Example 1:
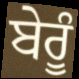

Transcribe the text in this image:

ਬੇਰੂੰ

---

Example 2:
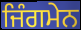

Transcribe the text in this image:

ਜਿੰਗਮੇਨ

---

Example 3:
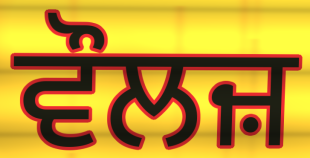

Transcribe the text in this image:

ਵੌਲਜ਼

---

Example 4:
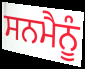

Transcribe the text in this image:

ਸਨਮੈਨੂੰ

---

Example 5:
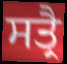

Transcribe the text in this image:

ਸਤ੍ਰੈ